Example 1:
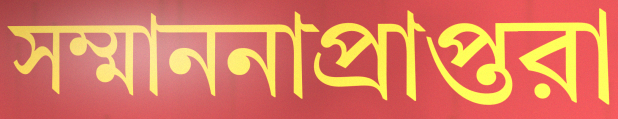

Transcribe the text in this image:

সম্মাননাপ্রাপ্তরা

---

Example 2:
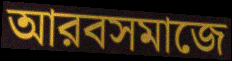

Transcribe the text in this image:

আরবসমাজে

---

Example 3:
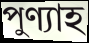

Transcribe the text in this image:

পুণ্যাহ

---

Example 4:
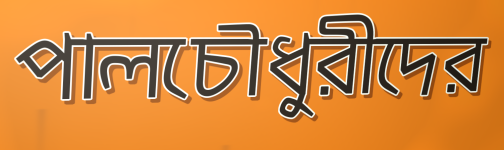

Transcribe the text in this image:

পালচৌধুরীদের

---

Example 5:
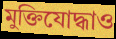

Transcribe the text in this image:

মুক্তিযোদ্ধাও